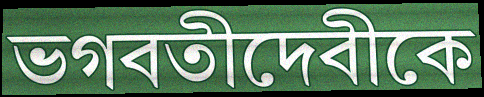
ভগবতীদেবীকে